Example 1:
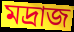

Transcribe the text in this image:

মদ্রাজ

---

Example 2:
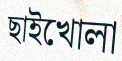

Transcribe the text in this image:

ছাইখোলা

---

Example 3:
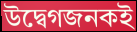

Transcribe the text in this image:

উদ্বেগজনকই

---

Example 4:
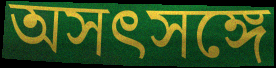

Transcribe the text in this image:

অসৎসঙ্গে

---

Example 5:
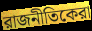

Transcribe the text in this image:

রাজনীতিকেরা